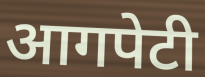
आगपेटी